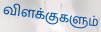
விளக்குகளும்